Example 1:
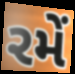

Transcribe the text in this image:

રમેં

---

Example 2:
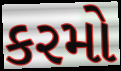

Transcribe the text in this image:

કરમો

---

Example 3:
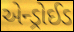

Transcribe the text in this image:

એન્ડ્રોઈડ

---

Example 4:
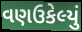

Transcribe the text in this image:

વણઉકેલ્યું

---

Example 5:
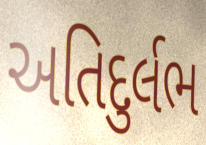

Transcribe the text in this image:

અતિદુર્લભ